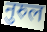
नुरुल